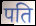
पति